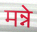
मन्ने